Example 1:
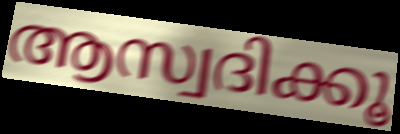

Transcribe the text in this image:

ആസ്വദിക്കൂ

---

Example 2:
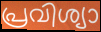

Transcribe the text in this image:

പ്രവിശ്യാ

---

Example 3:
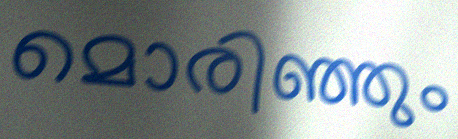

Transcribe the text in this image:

മൊരിഞ്ഞും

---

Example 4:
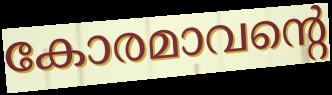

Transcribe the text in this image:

കോരമാവന്റെ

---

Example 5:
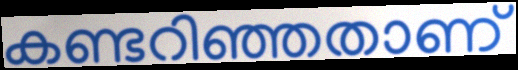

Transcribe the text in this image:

കണ്ടറിഞ്ഞതാണ്